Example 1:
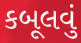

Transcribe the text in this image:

કબૂલવું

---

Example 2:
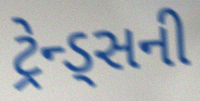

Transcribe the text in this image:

ટ્રેન્ડ્સની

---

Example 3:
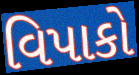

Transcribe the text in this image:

વિપાકો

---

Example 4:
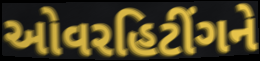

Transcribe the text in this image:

ઓવરહિટીંગને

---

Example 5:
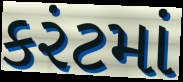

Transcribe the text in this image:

કરંટમાં